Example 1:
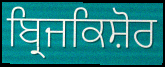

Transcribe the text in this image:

ਬ੍ਰਿਜਕਿਸ਼ੋਰ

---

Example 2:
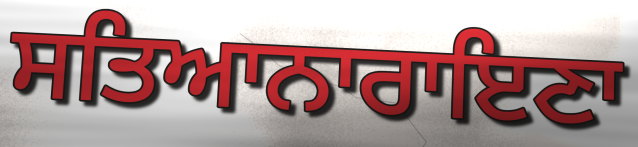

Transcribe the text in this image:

ਸਤਿਆਨਾਰਾਇਣਾ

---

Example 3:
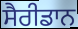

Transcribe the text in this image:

ਸੈਰੀਡਾਨ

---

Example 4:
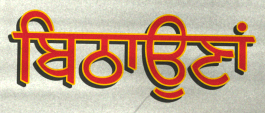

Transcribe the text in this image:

ਬਿਠਾਉਣਾਂ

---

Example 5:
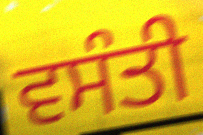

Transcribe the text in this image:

ਵਸੰਤੀ